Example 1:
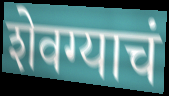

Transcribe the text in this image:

शेवग्याचं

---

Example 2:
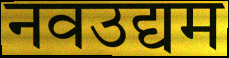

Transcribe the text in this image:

नवउद्यम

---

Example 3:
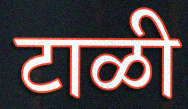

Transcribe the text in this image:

टाळी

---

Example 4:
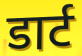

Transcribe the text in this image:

डार्ट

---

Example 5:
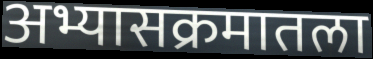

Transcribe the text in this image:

अभ्यासक्रमातला